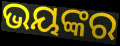
ଭୟଙ୍କର